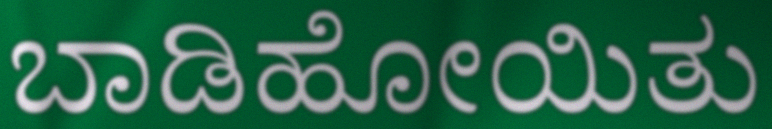
ಬಾಡಿಹೋಯಿತು